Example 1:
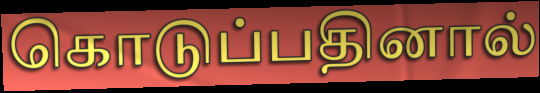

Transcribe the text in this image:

கொடுப்பதினால்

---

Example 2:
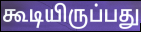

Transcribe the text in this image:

கூடியிருப்பது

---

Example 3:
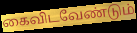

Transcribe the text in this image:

கைவிடவேண்டும்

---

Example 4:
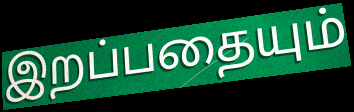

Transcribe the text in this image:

இறப்பதையும்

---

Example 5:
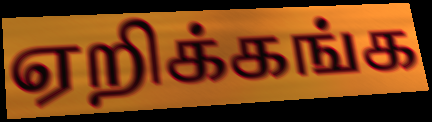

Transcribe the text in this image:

ஏறிக்கங்க